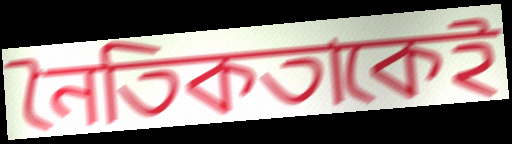
নৈতিকতাকেই